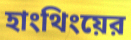
হাংথিংয়ের